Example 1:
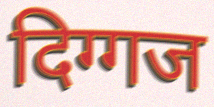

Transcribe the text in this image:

दिग्गज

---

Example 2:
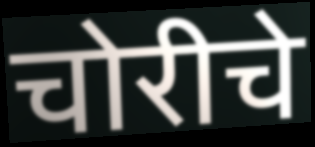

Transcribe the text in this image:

चोरीचे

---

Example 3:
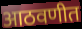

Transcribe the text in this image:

आठवणीत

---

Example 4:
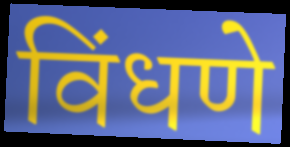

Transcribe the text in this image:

विंधणे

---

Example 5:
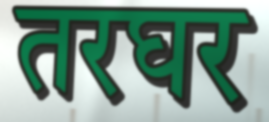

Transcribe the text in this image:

तरघर